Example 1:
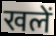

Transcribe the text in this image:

खलें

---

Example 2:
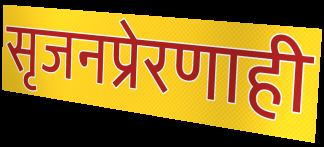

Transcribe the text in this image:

सृजनप्रेरणाही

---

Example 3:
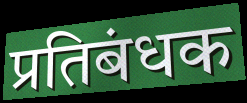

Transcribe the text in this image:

प्रतिबंधक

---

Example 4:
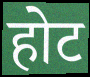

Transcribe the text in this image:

होट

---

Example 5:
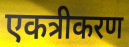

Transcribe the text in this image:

एकत्रीकरण